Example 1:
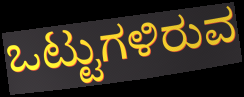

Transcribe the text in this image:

ಒಟ್ಟುಗಳಿರುವ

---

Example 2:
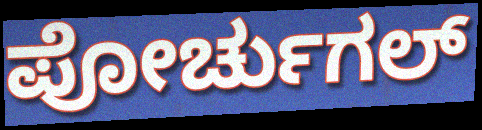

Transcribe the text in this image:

ಪೋರ್ಚುಗಲ್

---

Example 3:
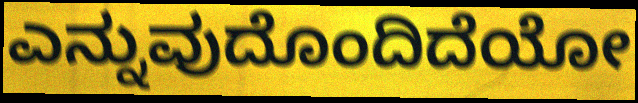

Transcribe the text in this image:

ಎನ್ನುವುದೊಂದಿದೆಯೋ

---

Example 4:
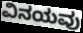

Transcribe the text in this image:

ವಿನಯವು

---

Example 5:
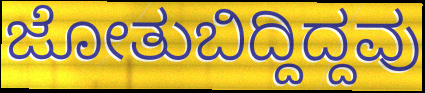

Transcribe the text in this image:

ಜೋತುಬಿದ್ದಿದ್ದವು